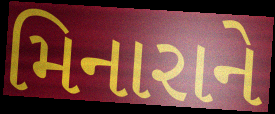
મિનારાને